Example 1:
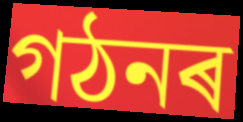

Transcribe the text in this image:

গঠনৰ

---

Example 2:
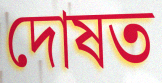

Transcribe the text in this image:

দোষত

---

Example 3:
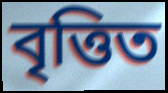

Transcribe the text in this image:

বৃত্তিত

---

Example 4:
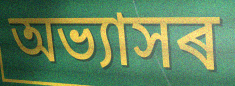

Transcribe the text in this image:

অভ্যাসৰ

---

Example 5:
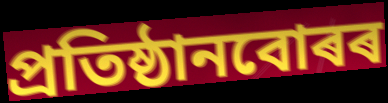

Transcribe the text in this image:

প্ৰতিষ্ঠানবোৰৰ